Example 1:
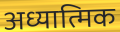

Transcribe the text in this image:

अध्यात्मिक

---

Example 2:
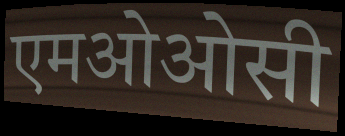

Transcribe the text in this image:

एमओओसी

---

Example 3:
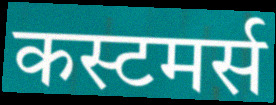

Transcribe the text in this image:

कस्‍टमर्स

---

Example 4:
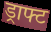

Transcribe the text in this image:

ड्राफ्ट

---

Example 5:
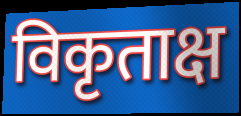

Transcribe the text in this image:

विकृताक्ष